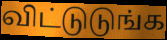
விட்டுடுங்க